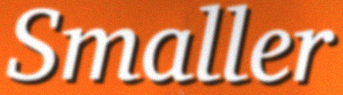
Smaller